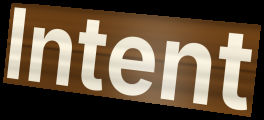
Intent